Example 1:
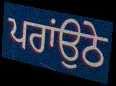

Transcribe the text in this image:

ਪਰਾਂਉਠੇ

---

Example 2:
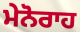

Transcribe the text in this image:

ਮੇਨੋਰਾਹ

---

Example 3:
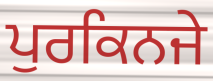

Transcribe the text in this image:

ਪੁਰਕਿਨਜੇ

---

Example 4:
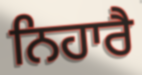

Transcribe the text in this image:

ਨਿਹਾਰੈ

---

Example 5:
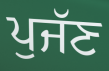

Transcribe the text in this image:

ਪੁਜੱਣ